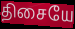
திசையே